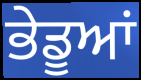
ਭੇਡੂਆਂ